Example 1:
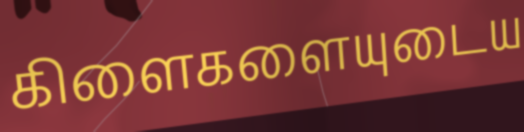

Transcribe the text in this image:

கிளைகளையுடைய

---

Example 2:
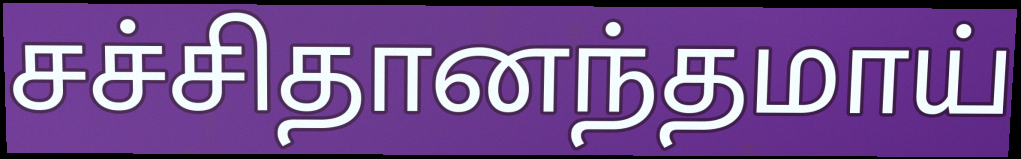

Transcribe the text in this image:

சச்சிதானந்தமாய்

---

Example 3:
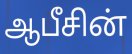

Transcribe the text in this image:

ஆபீசின்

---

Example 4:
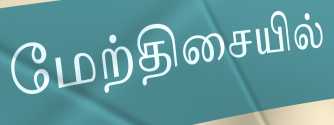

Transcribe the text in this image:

மேற்திசையில்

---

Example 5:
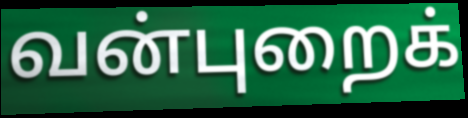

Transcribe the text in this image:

வன்புறைக்